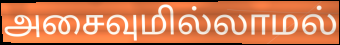
அசைவுமில்லாமல்